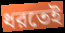
ধরতেই